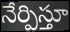
నేర్పిస్తూ